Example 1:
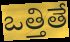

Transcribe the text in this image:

ఒత్తితే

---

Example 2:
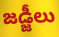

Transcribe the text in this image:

జడ్జీలు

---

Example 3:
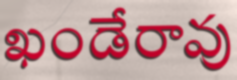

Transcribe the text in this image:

ఖండేరావు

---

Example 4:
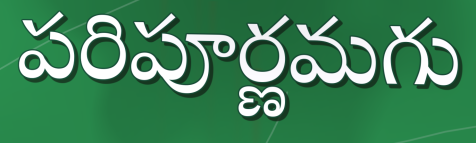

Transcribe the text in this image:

పరిపూర్ణమగు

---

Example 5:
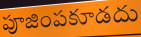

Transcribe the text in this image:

పూజింపకూడదు